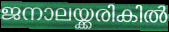
ജനാലയ്ക്കരികിൽ